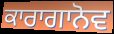
ਕਾਰਾਗਾਨੋਵ